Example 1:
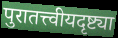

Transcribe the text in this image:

पुरातत्त्वीयदृष्ट्या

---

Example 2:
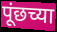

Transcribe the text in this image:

पूंछच्या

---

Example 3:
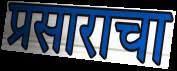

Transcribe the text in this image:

प्रसाराचा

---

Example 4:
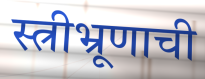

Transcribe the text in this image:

स्त्रीभ्रूणाची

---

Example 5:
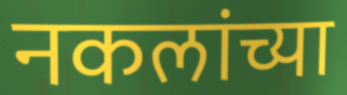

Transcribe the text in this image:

नकलांच्या